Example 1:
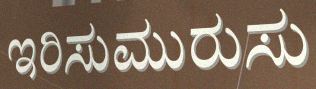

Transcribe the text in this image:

ಇರಿಸುಮುರುಸು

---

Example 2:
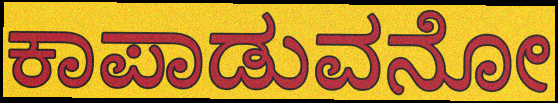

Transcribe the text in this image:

ಕಾಪಾಡುವನೋ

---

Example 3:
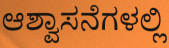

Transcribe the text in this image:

ಆಶ್ವಾಸನೆಗಳಲ್ಲಿ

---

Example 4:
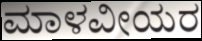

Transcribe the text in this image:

ಮಾಳವೀಯರ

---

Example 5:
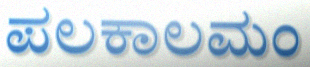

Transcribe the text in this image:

ಪಲಕಾಲಮಂ